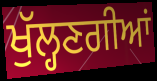
ਖੁੱਲ੍ਹਣਗੀਆਂ